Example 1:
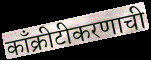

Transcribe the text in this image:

काँक्रीटीकरणाची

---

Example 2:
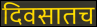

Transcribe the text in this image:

दिवसातच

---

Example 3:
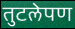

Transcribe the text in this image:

तुटलेपण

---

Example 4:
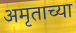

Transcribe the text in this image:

अमृताच्या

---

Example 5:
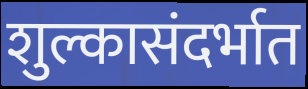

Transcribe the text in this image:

शुल्कासंदर्भात